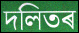
দলিতৰ